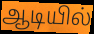
ஆடியில்